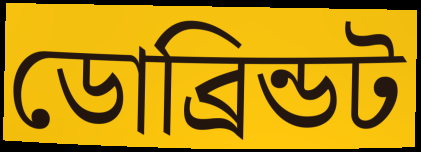
ডোব্রিন্ডট